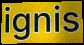
ignis